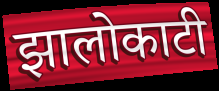
झालोकाटी